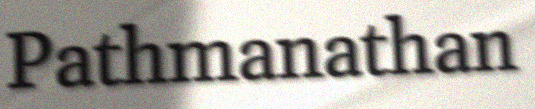
Pathmanathan